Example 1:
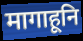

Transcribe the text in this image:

मागाहूनि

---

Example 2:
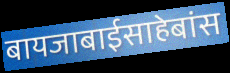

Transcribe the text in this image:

बायजाबाईसाहेबांस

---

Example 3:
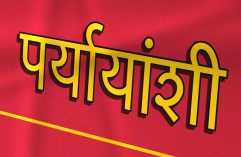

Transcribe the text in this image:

पर्यायांशी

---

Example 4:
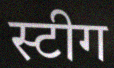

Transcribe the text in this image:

स्टीग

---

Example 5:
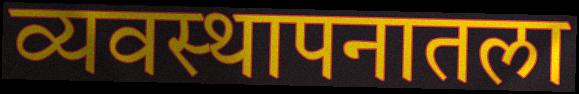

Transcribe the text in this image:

व्यवस्थापनातला